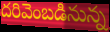
దరివెంబడినున్న